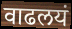
वाढलयं